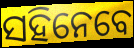
ସହିନେବେ